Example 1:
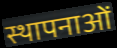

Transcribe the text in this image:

स्थापनाओं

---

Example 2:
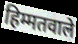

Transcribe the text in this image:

हिम्मतवाले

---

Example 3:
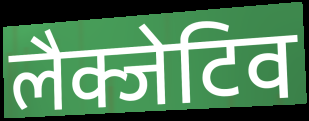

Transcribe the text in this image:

लैक्जेटिव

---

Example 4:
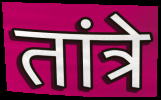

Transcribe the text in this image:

तांत्रे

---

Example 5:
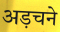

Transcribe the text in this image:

अड़चने